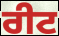
ਰੀਟ